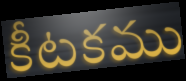
కీటకము